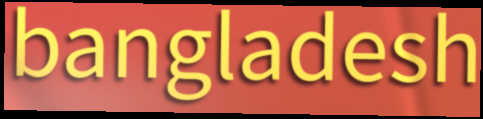
bangladesh